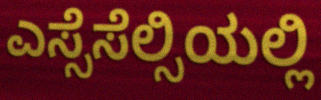
ಎಸ್ಸೆಸೆಲ್ಸಿಯಲ್ಲಿ